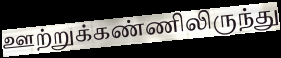
ஊற்றுக்கண்ணிலிருந்து